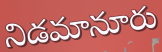
నిడమానూరు